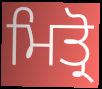
ਮਿਤ੍ਰੋ